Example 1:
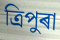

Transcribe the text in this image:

ত্ৰিপুৰা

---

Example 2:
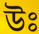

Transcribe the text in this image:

উঃ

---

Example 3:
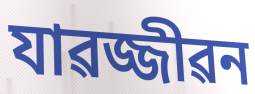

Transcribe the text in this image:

যাৱজ্জীৱন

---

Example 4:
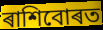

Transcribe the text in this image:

ৰাশিবোৰত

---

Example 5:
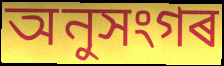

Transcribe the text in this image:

অনুসংগৰ